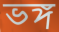
ভঙ্গ